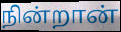
நின்றான்